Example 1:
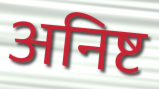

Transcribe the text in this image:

अनिष्ट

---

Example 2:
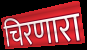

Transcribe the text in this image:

चिरणारा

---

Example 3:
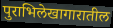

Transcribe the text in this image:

पुराभिलेखागारातील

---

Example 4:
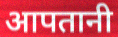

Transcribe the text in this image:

आपतानी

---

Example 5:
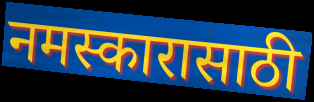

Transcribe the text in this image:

नमस्कारासाठी